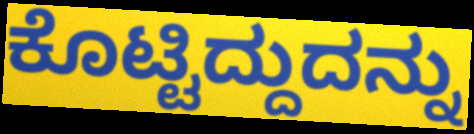
ಕೊಟ್ಟಿದ್ದುದನ್ನು